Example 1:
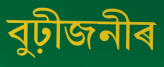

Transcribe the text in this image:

বুঢ়ীজনীৰ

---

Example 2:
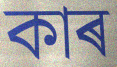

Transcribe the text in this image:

কাৰ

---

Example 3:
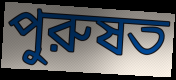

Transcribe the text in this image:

পুৰুষত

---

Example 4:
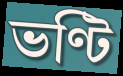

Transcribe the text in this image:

ভণ্টি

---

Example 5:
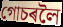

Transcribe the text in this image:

গোচৰলৈ